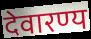
देवारण्य